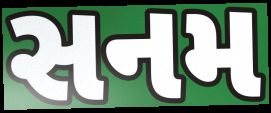
સનમ